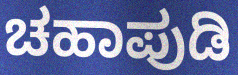
ಚಹಾಪುಡಿ